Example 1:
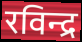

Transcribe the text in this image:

रविन्द्र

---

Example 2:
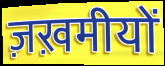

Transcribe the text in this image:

ज़ख़मीयों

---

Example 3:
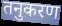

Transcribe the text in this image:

तनुकरण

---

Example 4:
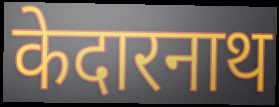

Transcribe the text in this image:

केदारनाथ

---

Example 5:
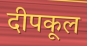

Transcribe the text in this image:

दीपकूल